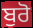
ਬੁਰੋ